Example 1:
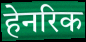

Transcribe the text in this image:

हेनरिक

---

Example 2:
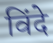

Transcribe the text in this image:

विंदे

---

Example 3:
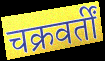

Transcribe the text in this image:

चक्रवर्तीं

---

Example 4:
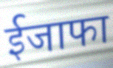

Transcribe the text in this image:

ईजाफा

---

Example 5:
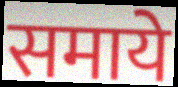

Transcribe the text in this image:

समाये